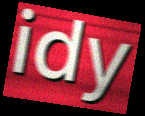
idy